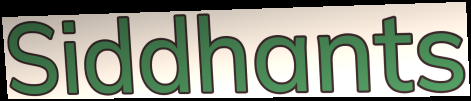
Siddhants